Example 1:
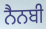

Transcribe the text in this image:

ਨੈਨਬੀ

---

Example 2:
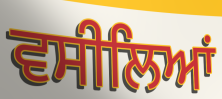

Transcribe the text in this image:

ਵਸੀਲਿਆਂ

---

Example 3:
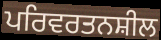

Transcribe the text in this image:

ਪਰਿਵਰਤਨਸ਼ੀਲ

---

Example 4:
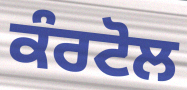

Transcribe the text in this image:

ਕੰਰਟੋਲ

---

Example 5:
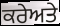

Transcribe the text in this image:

ਕਰੇਅਤੇ